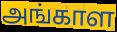
அங்காள